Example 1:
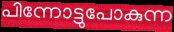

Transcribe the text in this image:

പിന്നോട്ടുപോകുന്ന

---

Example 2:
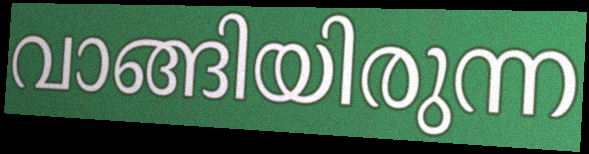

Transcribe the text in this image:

വാങ്ങിയിരുന്ന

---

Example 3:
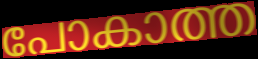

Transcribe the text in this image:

പോകാത്ത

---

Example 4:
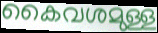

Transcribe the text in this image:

കൈവശമുള്ള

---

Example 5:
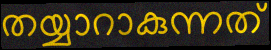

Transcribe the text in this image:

തയ്യാറാകുന്നത്